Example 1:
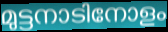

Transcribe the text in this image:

മുട്ടനാടിനോളം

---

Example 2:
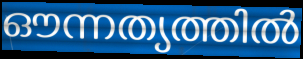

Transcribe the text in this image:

ഔന്നത്യത്തിൽ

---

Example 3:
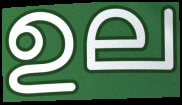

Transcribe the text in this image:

ഉല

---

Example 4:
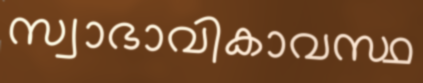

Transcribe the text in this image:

സ്വാഭാവികാവസ്ഥ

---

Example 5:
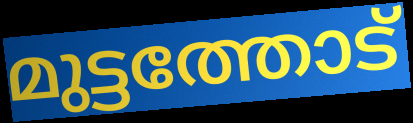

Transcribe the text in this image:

മുട്ടത്തോട്